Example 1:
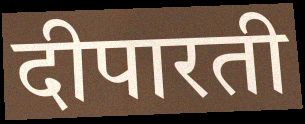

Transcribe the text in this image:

दीपारती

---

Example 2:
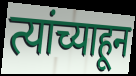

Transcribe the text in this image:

त्यांच्याहून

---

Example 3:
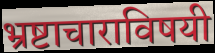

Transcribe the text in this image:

भ्रष्टाचाराविषयी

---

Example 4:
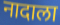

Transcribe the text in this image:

नादाला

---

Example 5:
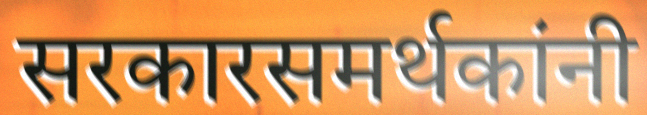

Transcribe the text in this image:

सरकारसमर्थकांनी